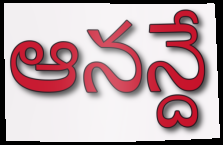
ఆనన్దే